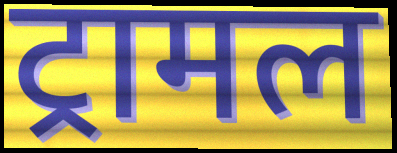
ट्रामल